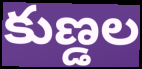
కుణ్డల